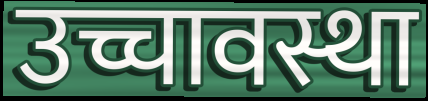
उच्चावस्था